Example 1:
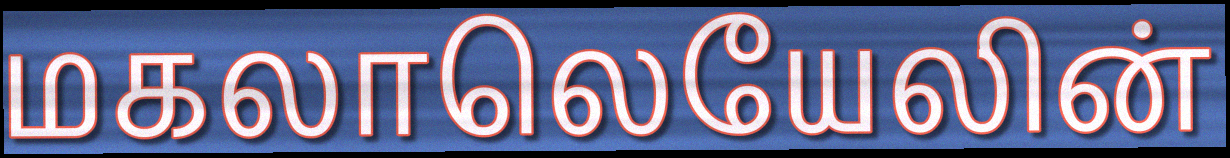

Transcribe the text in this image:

மகலாலெயேலின்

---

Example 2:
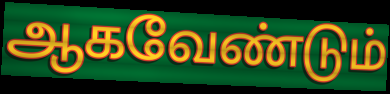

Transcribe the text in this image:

ஆகவேண்டும்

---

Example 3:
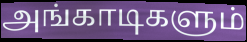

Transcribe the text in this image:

அங்காடிகளும்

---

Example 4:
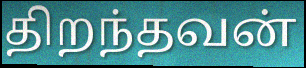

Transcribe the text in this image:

திறந்தவன்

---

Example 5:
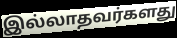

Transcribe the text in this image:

இல்லாதவர்களது